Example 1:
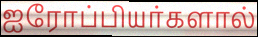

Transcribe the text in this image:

ஐரோப்பியர்களால்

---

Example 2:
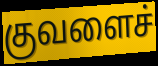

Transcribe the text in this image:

குவளைச்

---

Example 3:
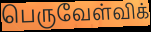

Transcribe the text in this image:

பெருவேள்விக்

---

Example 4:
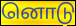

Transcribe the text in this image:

னொடு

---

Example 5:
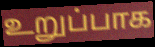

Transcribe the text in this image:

உறுப்பாக